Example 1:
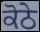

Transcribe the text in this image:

ਕੋਠੇ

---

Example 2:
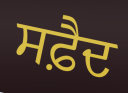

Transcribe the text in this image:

ਸਫ਼ੈਦ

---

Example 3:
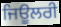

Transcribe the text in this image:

ਜਿਊਲਰੀ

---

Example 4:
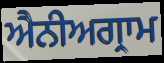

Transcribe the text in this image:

ਐਨੀਅਗ੍ਰਾਮ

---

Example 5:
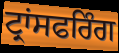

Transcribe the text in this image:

ਟ੍ਰਾਂਸਫਰਿੰਗ